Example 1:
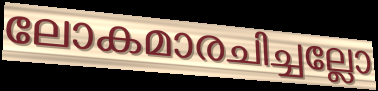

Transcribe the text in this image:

ലോകമാരചിച്ചല്ലോ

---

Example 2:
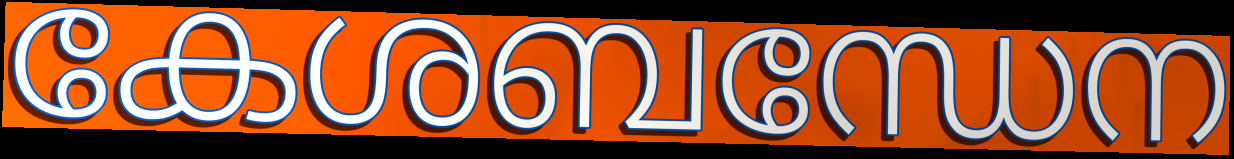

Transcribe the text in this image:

കേശബന്ധേന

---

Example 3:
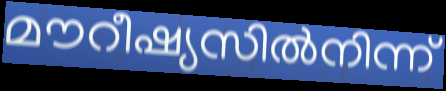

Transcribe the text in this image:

മൗറീഷ്യസിൽനിന്ന്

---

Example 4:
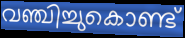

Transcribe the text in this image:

വഞ്ചിച്ചുകൊണ്ട്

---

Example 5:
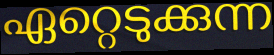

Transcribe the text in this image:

ഏറ്റെടുക്കുന്ന